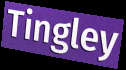
Tingley